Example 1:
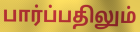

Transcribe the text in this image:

பார்ப்பதிலும்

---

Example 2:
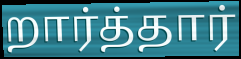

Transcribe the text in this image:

றார்த்தார்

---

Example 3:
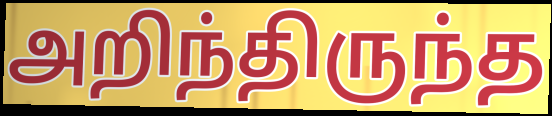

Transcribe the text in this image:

அறிந்திருந்த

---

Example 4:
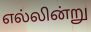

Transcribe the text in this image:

எல்லின்று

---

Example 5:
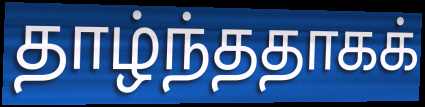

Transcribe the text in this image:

தாழ்ந்ததாகக்